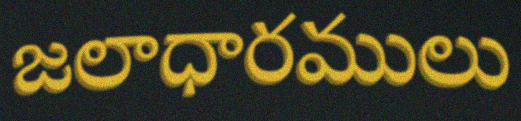
జలాధారములు